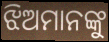
ଝିଅମାନଙ୍କୁ